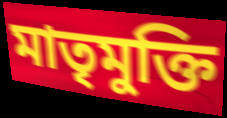
মাতৃমুক্তি